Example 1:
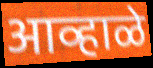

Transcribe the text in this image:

आव्हाळे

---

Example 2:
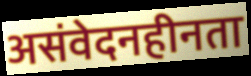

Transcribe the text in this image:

असंवेदनहीनता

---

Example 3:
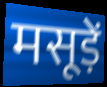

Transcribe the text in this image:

मसूड़ें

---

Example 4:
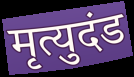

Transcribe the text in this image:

मृत्युदंड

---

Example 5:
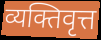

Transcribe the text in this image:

व्यक्तिवृत्त